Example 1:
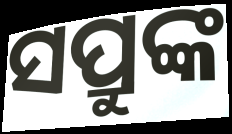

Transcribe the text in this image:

ସପ୍ରୁଙ୍କ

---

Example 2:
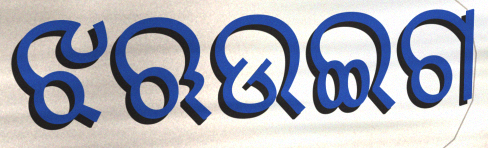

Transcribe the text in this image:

ଝଋଉଇଗ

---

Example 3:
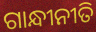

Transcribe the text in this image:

ଗାନ୍ଧୀନୀତି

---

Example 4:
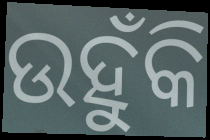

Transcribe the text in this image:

ଉହୁଁକି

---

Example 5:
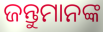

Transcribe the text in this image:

ଜନ୍ତୁମାନଙ୍କ